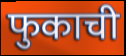
फुकाची